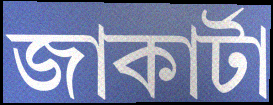
জাকাৰ্টা